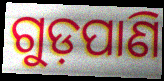
ଗୁଡ଼ପାଣି